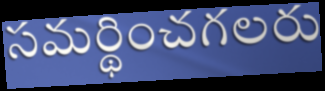
సమర్థించగలరు